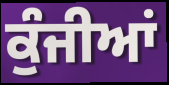
ਕੁੰਜੀਆਂ